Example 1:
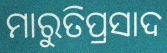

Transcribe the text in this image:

ମାରୁତିପ୍ରସାଦ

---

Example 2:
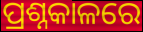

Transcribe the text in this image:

ପ୍ରଶ୍ନକାଳରେ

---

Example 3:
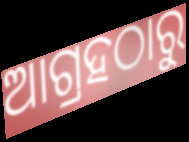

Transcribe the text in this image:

ଆଗ୍ରହଠାରୁ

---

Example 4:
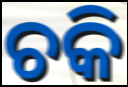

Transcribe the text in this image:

ଚକି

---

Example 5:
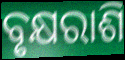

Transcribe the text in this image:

ବୃକ୍ଷରାଶି